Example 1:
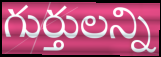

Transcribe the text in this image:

గుర్తులన్ని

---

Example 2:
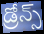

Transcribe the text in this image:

డ్రోన్స్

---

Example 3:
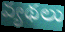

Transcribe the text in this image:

వ్యథలు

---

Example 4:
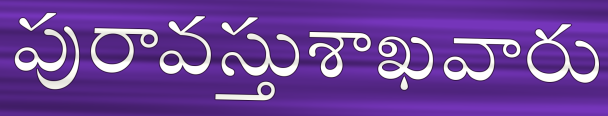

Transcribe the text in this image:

పురావస్తుశాఖవారు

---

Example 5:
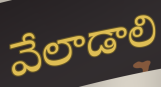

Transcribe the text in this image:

వేలాడాలి